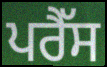
ਪਰੈੱਸ